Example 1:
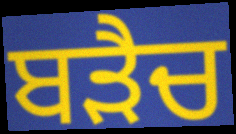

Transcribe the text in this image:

ਬੜੈਚ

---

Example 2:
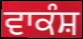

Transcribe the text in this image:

ਵਾਕੰਸ਼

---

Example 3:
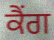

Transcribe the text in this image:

ਕੈਂਗ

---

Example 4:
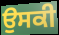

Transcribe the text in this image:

ਉਸਕੀ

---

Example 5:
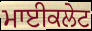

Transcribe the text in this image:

ਮਾਈਕਲੇਟ